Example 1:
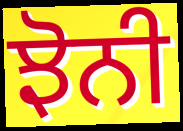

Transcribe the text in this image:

ਝੋਨੀ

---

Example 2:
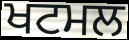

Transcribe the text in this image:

ਖਟਮਲ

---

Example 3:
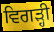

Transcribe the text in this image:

ਵਿਗੜ੍ਹੀ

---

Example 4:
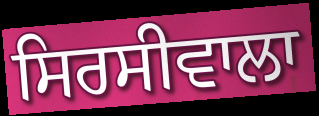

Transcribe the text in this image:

ਸਿਰਸੀਵਾਲਾ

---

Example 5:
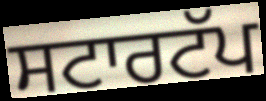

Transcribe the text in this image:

ਸਟਾਰਟੱਪ